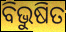
ବିଭୁଷିତ